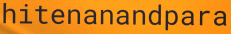
hitenanandpara